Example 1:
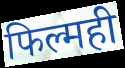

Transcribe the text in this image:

फिल्मही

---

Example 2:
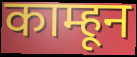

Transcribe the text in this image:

काम्हून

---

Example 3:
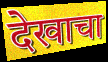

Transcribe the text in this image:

देखाचा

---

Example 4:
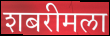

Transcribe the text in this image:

शबरीमला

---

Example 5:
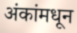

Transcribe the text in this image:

अंकांमधून